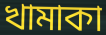
খামাকা